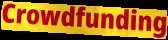
Crowdfunding